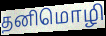
தனிமொழி